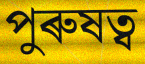
পুৰুষত্ব